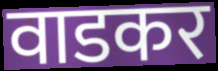
वाडकर